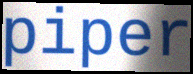
piper